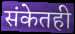
संकेतही